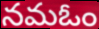
నమఓం